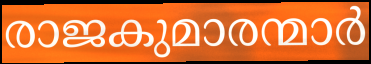
രാജകുമാരന്മാർ